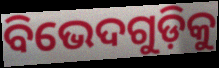
ବିଭେଦଗୁଡ଼ିକୁ